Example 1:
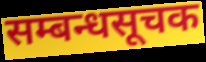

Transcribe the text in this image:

सम्बन्धसूचक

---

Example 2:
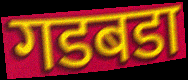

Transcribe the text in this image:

गडबडा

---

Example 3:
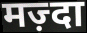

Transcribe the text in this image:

मज़्दा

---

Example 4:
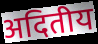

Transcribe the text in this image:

अदितीय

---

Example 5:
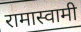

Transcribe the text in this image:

रामास्वामी